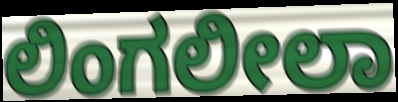
ಲಿಂಗಲೀಲಾ